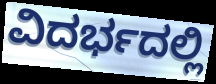
ವಿದರ್ಭದಲ್ಲಿ